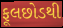
ફૂલછોડથી